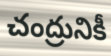
చంద్రునికీ